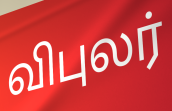
விபுலர்